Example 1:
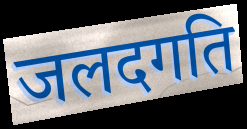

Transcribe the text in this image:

जलदगति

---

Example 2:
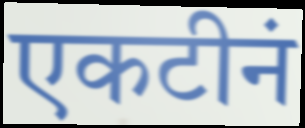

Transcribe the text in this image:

एकटीनं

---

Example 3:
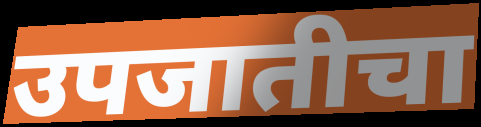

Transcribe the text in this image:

उपजातीचा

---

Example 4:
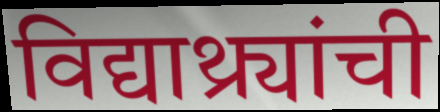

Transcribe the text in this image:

विद्याथ्र्यांची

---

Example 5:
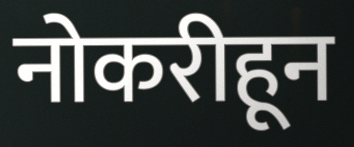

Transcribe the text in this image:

नोकरीहून